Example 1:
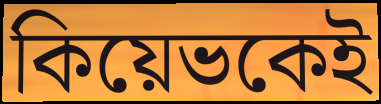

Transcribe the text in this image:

কিয়েভকেই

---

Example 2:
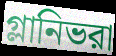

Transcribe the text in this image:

গ্লানিভরা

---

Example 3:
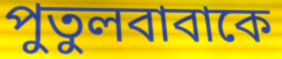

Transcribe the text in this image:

পুতুলবাবাকে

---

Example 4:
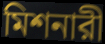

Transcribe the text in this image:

মিশনারী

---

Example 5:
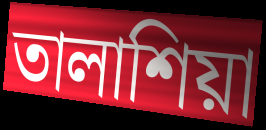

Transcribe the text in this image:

তালাশিয়া